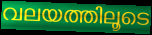
വലയത്തിലൂടെ